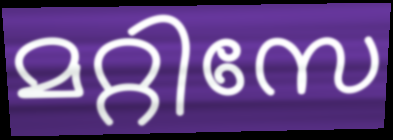
മറ്റിസേ